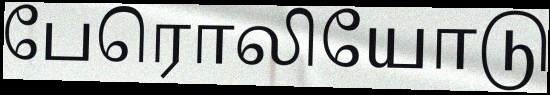
பேரொலியோடு